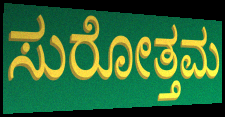
ಸುರೋತ್ತಮ